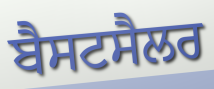
ਬੈਸਟਸੈਲਰ